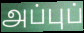
அப்புப்